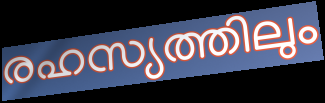
രഹസ്യത്തിലും